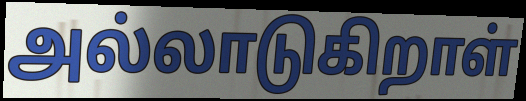
அல்லாடுகிறாள்